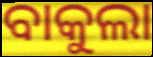
ବାକୁଲା